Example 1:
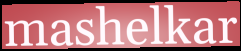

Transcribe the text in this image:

mashelkar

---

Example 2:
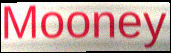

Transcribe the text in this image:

Mooney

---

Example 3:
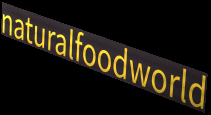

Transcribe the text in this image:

naturalfoodworld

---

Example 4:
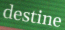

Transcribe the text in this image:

destine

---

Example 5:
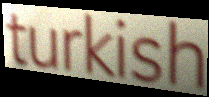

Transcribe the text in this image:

turkish